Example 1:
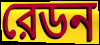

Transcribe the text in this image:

রেডন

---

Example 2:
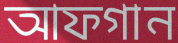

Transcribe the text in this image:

আফগান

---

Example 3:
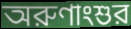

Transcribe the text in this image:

অরুণাংশুর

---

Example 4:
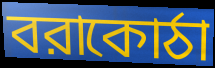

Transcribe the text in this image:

বরাকোঠা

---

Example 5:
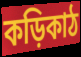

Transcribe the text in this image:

কড়িকাঠ